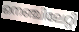
നെഞ്ചിലേറ്റി